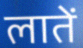
लातें